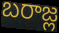
బరాజ్ల